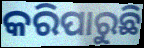
କରିପାରୁଛି